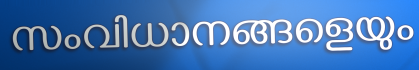
സംവിധാനങ്ങളെയും